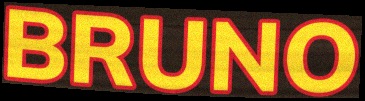
BRUNO